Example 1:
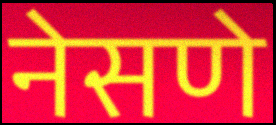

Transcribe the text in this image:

नेसणे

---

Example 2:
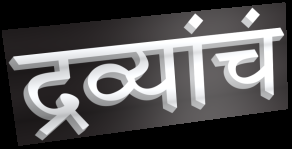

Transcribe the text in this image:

द्रव्यांचं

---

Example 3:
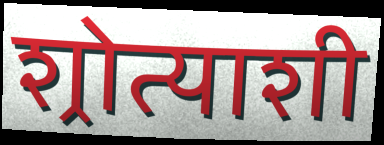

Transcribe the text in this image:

श्रोत्याशी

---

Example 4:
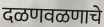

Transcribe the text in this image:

दळणवळणाचे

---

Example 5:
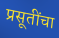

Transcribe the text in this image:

प्रसूतींचा